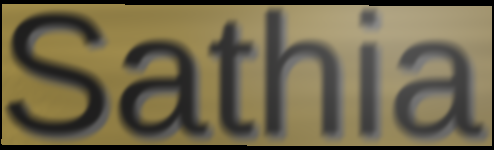
Sathia